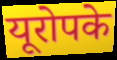
यूरोपके